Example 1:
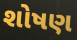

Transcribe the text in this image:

શોષણ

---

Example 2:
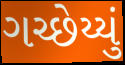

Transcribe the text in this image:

ગચ્છેય્યું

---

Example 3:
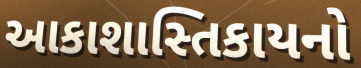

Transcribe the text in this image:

આકાશાસ્તિકાયનો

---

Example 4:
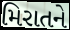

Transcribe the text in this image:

મિરાતને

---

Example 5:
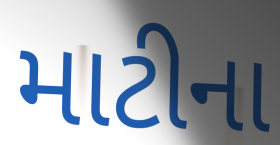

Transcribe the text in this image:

માટીના